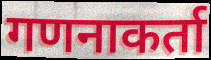
गणनाकर्ता